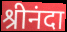
श्रीनंदा